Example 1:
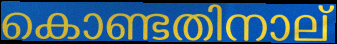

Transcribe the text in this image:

കൊണ്ടതിനാല്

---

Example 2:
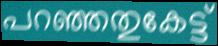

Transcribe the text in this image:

പറഞ്ഞതുകേട്ട്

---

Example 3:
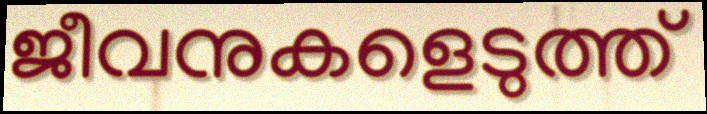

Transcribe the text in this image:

ജീവനുകളെടുത്ത്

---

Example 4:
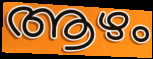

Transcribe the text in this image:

ആഴം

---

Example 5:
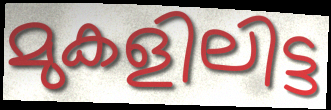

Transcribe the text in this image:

മുകളിലിട്ട